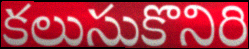
కలుసుకొనిరి